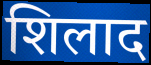
शिलाद